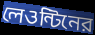
লেওন্টিনের